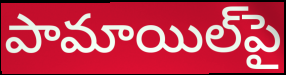
పామాయిల్‌పై